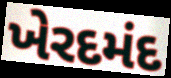
ખેરદમંદ